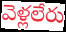
వెళ్లలేరు